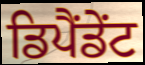
ਡਿਪੈਂਡੇਂਟ